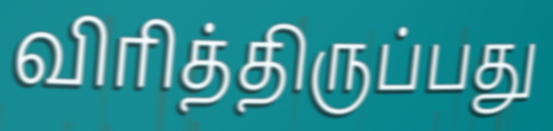
விரித்திருப்பது